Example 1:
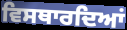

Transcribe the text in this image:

ਵਿਸਥਾਰਦਿਆਂ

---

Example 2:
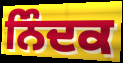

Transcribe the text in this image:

ਨਿੰਦਕ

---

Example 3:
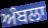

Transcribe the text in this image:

ਅੰਬਲਾ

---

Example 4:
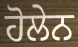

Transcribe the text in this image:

ਹੋਲੇਨ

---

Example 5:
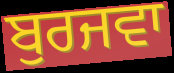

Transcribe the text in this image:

ਬੁਰਜਵਾ